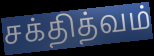
சக்தித்வம்